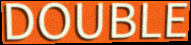
DOUBLE